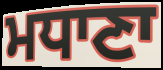
ਮਧਾਣਾ